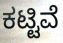
ಕಟ್ಟಿವೆ